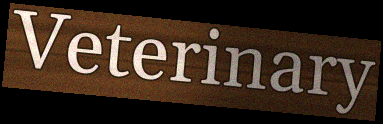
Veterinary